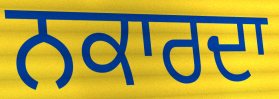
ਨਕਾਰਦਾ